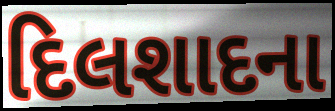
દિલશાદના